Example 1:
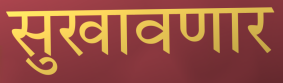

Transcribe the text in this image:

सुखावणार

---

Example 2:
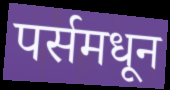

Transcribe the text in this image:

पर्समधून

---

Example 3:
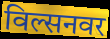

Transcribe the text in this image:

विल्सनवर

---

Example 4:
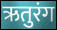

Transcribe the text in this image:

ऋतुरंग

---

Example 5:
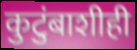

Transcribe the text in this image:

कुटुंबाशीही